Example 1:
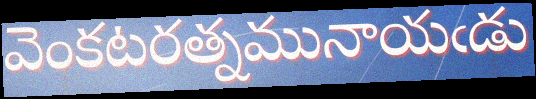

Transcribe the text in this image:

వెంకటరత్నమునాయఁడు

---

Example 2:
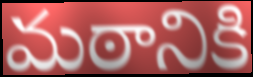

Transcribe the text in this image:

మఠానికి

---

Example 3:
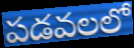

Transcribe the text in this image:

పడవలలో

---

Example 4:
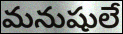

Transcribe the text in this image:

మనుషులే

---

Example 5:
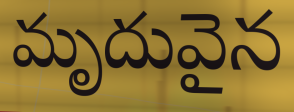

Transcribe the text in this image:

మృదువైన